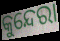
କୁନ୍ଦେରା